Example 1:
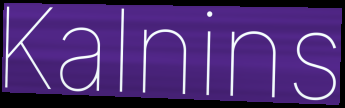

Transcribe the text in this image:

Kalnins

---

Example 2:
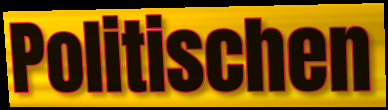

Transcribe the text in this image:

Politischen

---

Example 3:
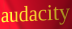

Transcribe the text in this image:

audacity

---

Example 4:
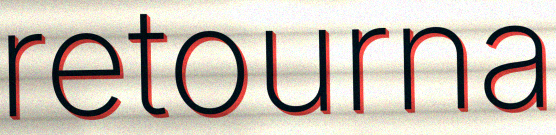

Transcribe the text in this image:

retourna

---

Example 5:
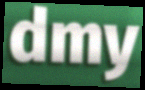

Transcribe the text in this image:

dmy